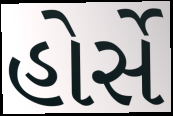
હોર્સે